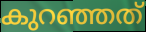
കുറഞ്ഞത്